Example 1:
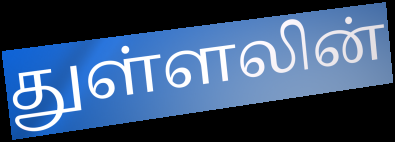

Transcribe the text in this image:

துள்ளலின்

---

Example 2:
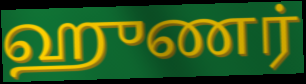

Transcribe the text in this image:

ஹுணர்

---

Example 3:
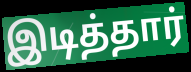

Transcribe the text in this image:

இடித்தார்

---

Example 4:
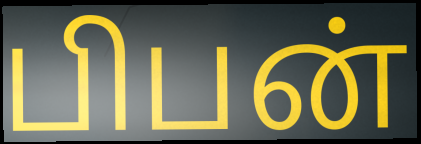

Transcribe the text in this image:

பிபன்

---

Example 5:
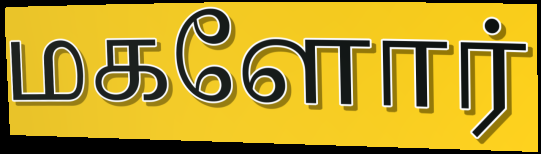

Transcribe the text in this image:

மகளோர்